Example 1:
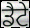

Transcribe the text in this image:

ਡੈਟੇ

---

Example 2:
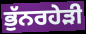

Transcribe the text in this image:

ਭੁੱਨਰਹੇੜੀ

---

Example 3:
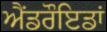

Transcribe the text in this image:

ਐਂਡਰੌਇਡਾਂ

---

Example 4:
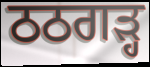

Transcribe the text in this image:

ਠਠਗੜ੍ਹ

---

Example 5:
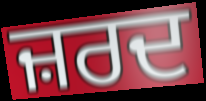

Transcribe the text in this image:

ਜ਼ਰਦ